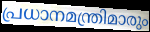
പ്രധാനമന്ത്രിമാരും